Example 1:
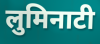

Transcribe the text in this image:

लुमिनाटी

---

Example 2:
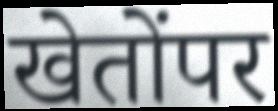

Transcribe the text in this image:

खेतोंपर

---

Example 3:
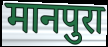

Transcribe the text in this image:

मानपुरा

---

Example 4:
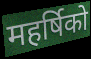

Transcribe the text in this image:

महर्षिको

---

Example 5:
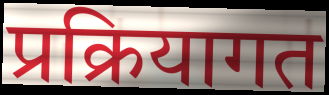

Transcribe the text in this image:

प्रक्रियागत